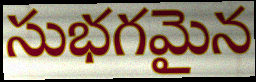
సుభగమైన